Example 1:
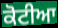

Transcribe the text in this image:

ਕੋਟੀਆ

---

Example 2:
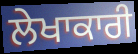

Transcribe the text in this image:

ਲੇਖਾਕਾਰੀ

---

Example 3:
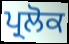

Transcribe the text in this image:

ਪ੍ਰਲੋਕ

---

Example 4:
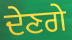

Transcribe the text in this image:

ਦੇਣਗੇ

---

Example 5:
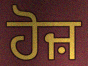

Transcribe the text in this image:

ਹੋਜ਼